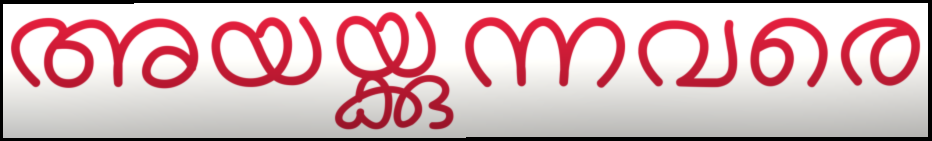
അയയ്ക്കുന്നവരെ